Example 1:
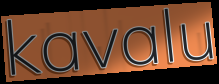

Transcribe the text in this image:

kavalu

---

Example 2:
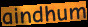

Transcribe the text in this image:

aindhum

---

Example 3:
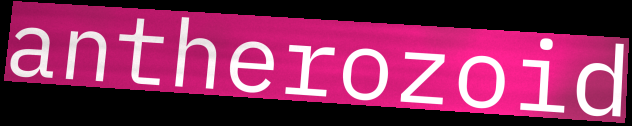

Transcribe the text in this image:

antherozoid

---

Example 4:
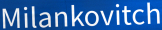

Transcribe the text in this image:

Milankovitch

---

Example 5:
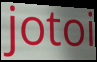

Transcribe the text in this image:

jotoi